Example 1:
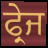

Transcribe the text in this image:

ਫ੍ਰੇਜ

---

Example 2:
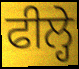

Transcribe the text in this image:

ਫੀਲ੍ਹੇ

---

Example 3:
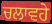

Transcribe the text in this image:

ਚਲਾਵਹੇ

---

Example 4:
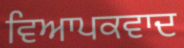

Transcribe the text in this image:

ਵਿਆਪਕਵਾਦ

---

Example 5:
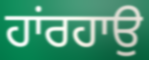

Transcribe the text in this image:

ਹਾਂਰਹਾਉ